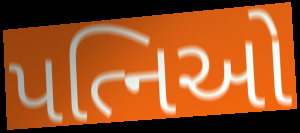
પત્નિઓ